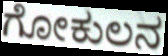
ಗೋಕುಲನ